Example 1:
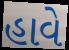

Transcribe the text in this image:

હાવે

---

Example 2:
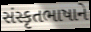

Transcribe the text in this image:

સંસ્કૃતભાષાને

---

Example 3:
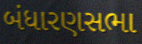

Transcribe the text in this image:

બંધારણસભા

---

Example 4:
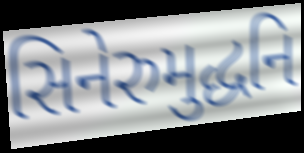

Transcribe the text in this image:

સિનેરુમુદ્ધનિ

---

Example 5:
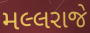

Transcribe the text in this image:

મલ્લરાજે